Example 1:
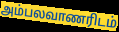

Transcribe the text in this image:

அம்பலவாணரிடம்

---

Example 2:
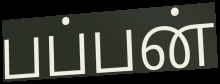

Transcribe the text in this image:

பப்பன்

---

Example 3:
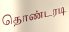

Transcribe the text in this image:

தொண்டரடி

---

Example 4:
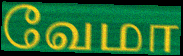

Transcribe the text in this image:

வேமா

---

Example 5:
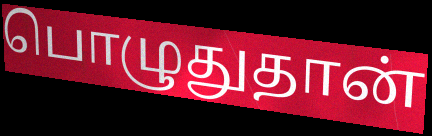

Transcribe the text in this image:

பொழுதுதான்